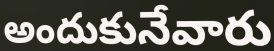
అందుకునేవారు